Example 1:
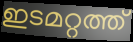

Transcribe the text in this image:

ഇടമറ്റത്ത്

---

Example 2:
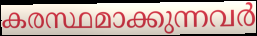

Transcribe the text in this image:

കരസ്ഥമാക്കുന്നവർ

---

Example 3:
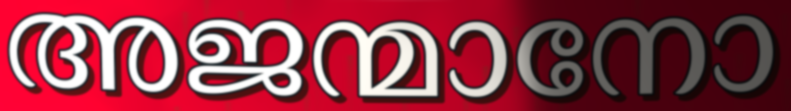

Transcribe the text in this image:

അജന്മാനോ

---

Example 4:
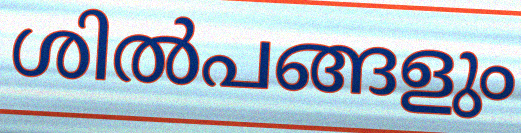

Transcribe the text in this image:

ശിൽപങ്ങളും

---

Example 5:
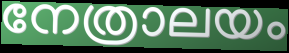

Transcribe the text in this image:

നേത്രാലയം